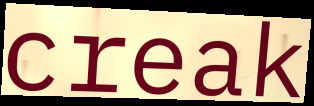
creak